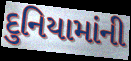
દુનિયામાંની